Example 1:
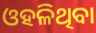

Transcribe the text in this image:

ଓହଳିଥିବା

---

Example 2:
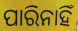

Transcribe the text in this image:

ପାରିନାହିଁ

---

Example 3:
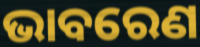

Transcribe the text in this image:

ଭାବରେଣ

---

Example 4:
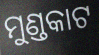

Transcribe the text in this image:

ମୁଣ୍ଡକାଟ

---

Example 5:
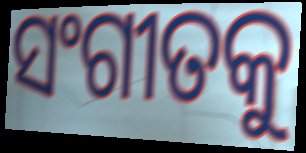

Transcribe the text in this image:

ସଂଗୀତକୁ